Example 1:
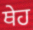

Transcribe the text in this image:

ਥੇਹ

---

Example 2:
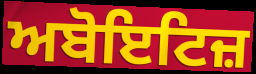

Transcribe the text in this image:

ਅਬੋਇਟਿਜ਼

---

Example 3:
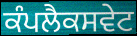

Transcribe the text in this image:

ਕੰਪਲੈਕਸਵੇਟ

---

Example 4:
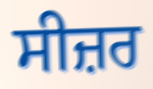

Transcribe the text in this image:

ਸੀਜ਼ਰ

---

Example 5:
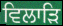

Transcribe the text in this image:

ਵਿਲਾੜਿ